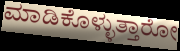
ಮಾಡಿಕೊಳ್ಳುತ್ತಾರೋ